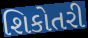
શિકોતરી